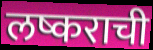
लष्कराची